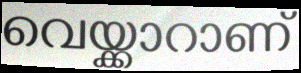
വെയ്ക്കാറാണ്